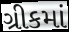
ગ્રીકમાં